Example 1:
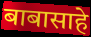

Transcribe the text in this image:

बाबासाहे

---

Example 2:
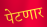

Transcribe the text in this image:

पेटणार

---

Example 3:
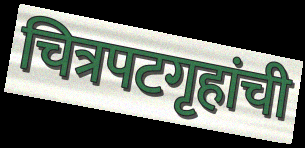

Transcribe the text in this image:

चित्रपटगृहांची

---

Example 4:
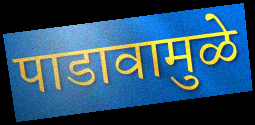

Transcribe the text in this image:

पाडावामुळे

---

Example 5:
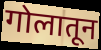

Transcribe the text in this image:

गोलातून